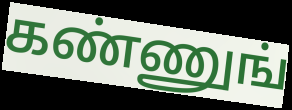
கண்ணுங்